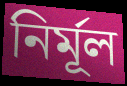
নির্মূল